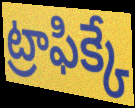
ట్రాఫిక్కే